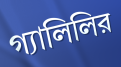
গ্যালিলির